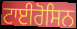
ਟਾਈਰੋਸਿਨ